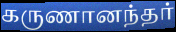
கருணானந்தர்